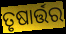
ତୃଷାର୍ତ୍ତର